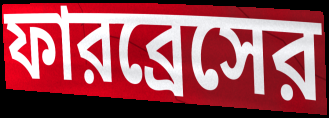
ফারব্রেসের